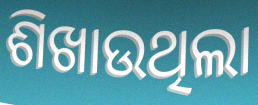
ଶିଖାଉଥିଲା